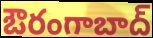
ఔరంగాబాద్